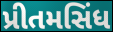
પ્રીતમસિંધ